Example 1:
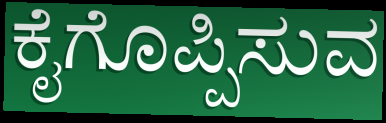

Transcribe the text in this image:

ಕೈಗೊಪ್ಪಿಸುವ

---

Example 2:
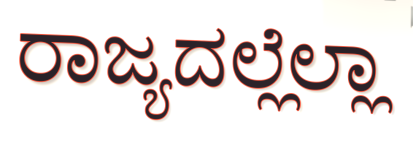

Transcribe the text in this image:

ರಾಜ್ಯದಲ್ಲೆಲ್ಲಾ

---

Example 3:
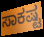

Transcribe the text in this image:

ಸಾಕಷ್ಟ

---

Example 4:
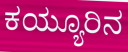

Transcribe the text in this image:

ಕಯ್ಯೂರಿನ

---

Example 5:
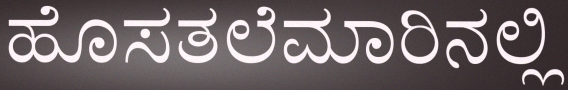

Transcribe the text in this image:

ಹೊಸತಲೆಮಾರಿನಲ್ಲಿ